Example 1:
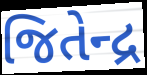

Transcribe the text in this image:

જિતેન્દ્ર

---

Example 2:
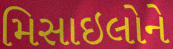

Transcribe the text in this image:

મિસાઇલોને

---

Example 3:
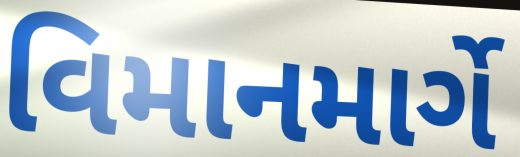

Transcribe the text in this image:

વિમાનમાર્ગે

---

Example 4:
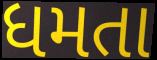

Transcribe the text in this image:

ધમતા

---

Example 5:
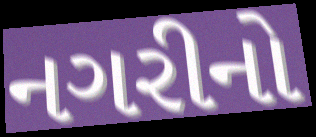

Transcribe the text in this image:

નગરીનો